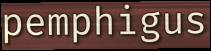
pemphigus